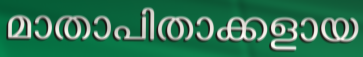
മാതാപിതാക്കളായ